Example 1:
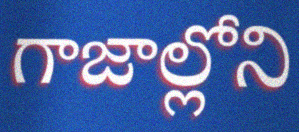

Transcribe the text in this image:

గాజాల్లోని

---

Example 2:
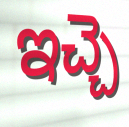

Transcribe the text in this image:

ఇచ్చె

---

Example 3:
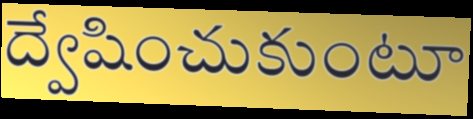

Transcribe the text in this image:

ద్వేషించుకుంటూ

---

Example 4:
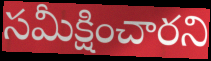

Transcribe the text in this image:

సమీక్షించారని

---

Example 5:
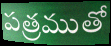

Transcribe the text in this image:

పత్రముతో